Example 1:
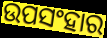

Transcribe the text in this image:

ଉପସଂହାର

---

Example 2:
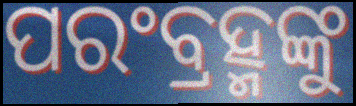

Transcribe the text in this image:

ପରଂବ୍ରହ୍ମଙ୍କୁ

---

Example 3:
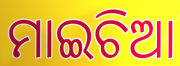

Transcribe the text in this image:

ମାଇଚିଆ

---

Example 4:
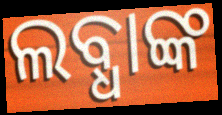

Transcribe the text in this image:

ଲବ୍ଧାଙ୍କ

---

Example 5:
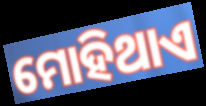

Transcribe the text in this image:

ମୋହିଥାଏ